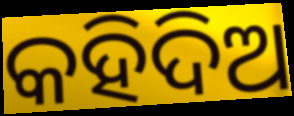
କହିଦିଅ